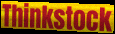
Thinkstock